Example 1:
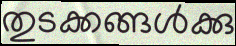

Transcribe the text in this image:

തുടക്കങ്ങൾക്കു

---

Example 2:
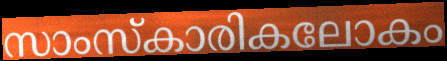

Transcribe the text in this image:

സാംസ്കാരികലോകം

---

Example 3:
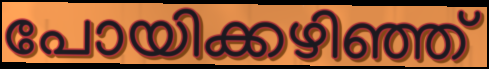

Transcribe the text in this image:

പോയിക്കഴിഞ്ഞ്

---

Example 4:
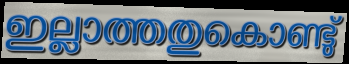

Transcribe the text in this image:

ഇല്ലാത്തതുകൊണ്ടു്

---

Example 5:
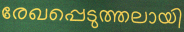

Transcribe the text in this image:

രേഖപ്പെടുത്തലായി